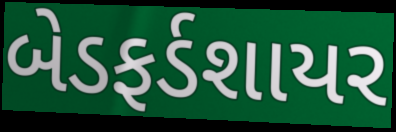
બેડફર્ડશાયર